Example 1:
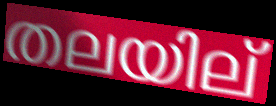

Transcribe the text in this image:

തലയില്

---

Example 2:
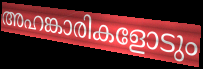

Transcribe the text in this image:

അഹങ്കാരികളോടും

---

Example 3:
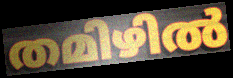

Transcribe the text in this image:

തമിഴിൽ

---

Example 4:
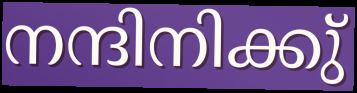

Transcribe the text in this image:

നന്ദിനിക്കു്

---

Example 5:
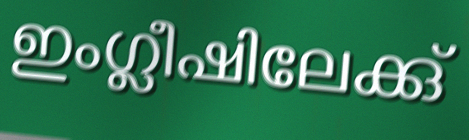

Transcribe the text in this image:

ഇംഗ്ലീഷിലേക്കു്